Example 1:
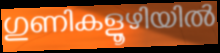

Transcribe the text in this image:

ഗുണികളൂഴിയിൽ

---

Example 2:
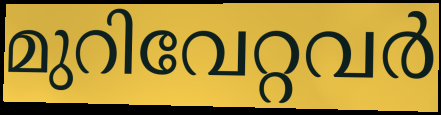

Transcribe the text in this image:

മുറിവേറ്റവർ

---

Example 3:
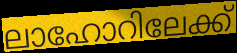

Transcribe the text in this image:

ലാഹോറിലേക്ക്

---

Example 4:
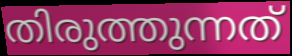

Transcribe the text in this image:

തിരുത്തുന്നത്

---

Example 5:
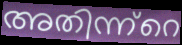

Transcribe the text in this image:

അതിന്ന്റെ